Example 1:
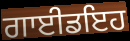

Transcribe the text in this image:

ਗਾਈਡਇਹ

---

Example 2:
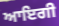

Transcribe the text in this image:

ਆਇਗੀ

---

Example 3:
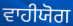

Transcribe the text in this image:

ਵਾਹੀਯੋਗ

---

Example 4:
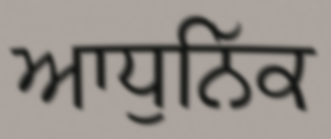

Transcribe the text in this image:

ਆਧੁਨਿੱਕ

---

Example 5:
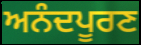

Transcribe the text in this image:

ਅਨੰਦਪੂਰਣ